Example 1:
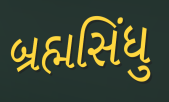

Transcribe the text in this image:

બ્રહ્મસિંધુ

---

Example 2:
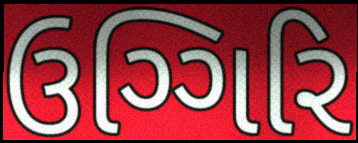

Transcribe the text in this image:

ઉગ્ગિરિ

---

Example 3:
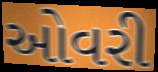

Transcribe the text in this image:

ઓવરી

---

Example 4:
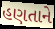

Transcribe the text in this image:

હણતાને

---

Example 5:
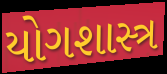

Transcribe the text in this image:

યોગશાસ્‍ત્ર